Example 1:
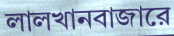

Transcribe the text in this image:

লালখানবাজারে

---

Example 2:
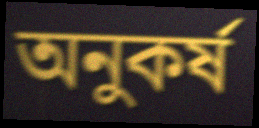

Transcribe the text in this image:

অনুকর্ষ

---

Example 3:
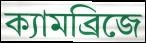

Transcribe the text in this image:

ক্যামব্রিজে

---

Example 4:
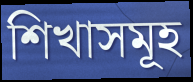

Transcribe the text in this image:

শিখাসমূহ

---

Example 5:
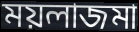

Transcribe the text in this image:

ময়লাজমা